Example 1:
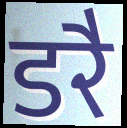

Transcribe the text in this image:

डरै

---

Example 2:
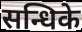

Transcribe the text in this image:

सन्धिके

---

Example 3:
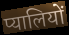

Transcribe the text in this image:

प्यालियों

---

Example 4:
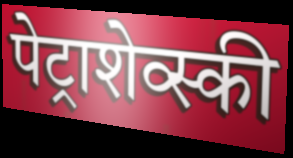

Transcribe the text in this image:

पेट्राशेव्स्की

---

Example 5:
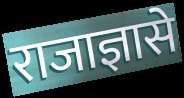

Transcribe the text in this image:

राजाज्ञासे